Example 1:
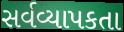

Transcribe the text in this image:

સર્વવ્યાપકતા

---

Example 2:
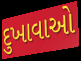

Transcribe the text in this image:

દુખાવાઓ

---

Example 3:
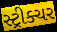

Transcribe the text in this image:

સ્ટ્રીક્ચર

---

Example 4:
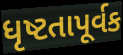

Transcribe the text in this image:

ધૃષ્ટતાપૂર્વક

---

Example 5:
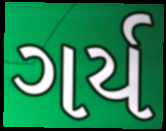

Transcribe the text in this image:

ગર્ય